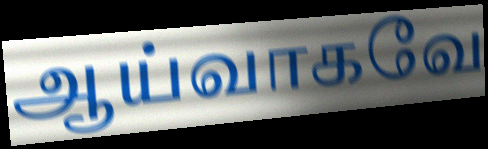
ஆய்வாகவே